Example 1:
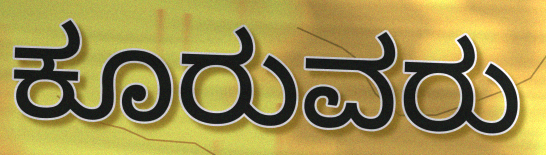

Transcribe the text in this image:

ಕೂರುವರು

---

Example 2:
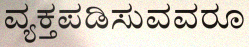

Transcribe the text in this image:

ವ್ಯಕ್ತಪಡಿಸುವವರೂ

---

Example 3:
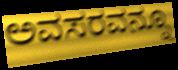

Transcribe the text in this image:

ಅವಸರವನ್ನೂ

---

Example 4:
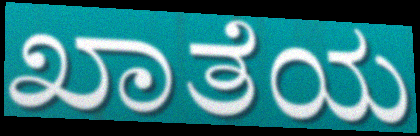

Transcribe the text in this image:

ಖಾತೆಯ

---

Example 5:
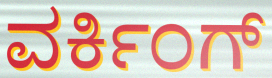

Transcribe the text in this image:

ವರ್ಕಿಂಗ್